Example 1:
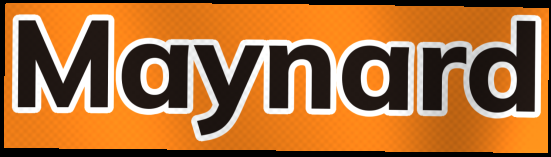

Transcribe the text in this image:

Maynard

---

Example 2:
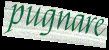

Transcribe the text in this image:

pugnare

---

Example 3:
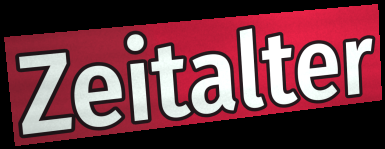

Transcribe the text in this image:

Zeitalter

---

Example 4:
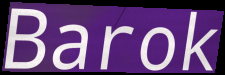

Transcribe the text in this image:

Barok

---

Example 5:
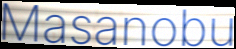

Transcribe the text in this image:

Masanobu